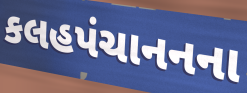
કલહપંચાનનના